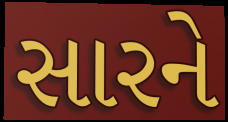
સારને